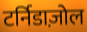
टर्निडाज़ोल